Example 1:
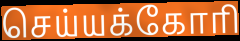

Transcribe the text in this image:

செய்யக்கோரி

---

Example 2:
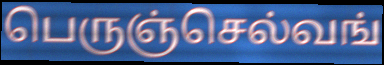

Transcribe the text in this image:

பெருஞ்செல்வங்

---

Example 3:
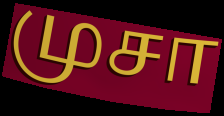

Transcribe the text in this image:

முசா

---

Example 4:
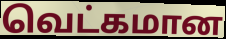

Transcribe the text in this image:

வெட்கமான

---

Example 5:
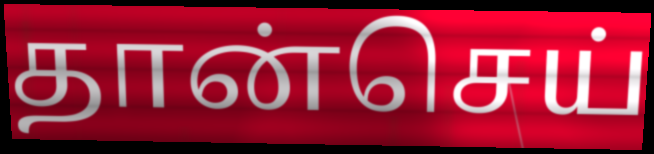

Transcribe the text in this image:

தான்செய்